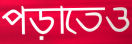
পড়াতেও